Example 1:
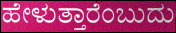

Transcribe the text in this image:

ಹೇಳುತ್ತಾರೆಂಬುದು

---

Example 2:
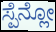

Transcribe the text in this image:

ಸ್ಪೆನ್ಲೋ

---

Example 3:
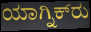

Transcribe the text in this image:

ಯಾಗ್ನಿಕ್‍ರು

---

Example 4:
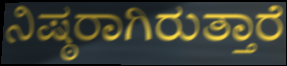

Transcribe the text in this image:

ನಿಷ್ಠರಾಗಿರುತ್ತಾರೆ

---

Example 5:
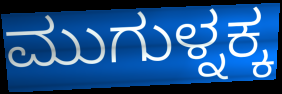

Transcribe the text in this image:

ಮುಗುಳ್ನಕ್ಕ